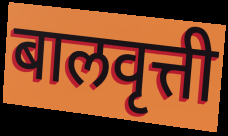
बालवृत्ती